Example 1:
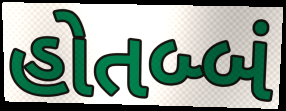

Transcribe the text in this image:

હોતબ્બં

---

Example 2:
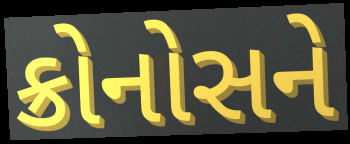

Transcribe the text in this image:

ક્રોનોસને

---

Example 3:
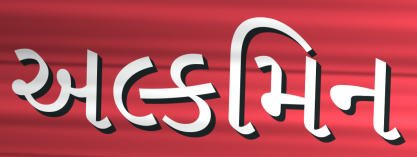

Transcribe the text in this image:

અલ્કમિન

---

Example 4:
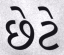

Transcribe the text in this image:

છેટે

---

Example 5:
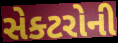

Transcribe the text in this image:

સેક્ટરોની